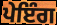
ਪੇਇੰਗ